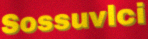
Sossuvlci